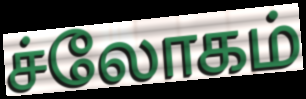
ச்லோகம்